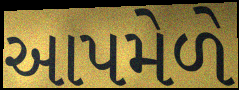
આપમેળે